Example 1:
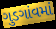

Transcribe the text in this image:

ગુડગાંવમાં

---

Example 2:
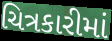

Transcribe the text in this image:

ચિત્રકારીમાં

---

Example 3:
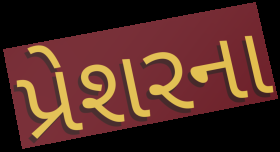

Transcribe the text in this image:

પ્રેશરના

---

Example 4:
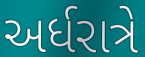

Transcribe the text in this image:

અર્ધરાત્રે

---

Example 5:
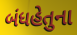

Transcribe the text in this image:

બંધહેતુના